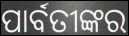
ପାର୍ବତୀଙ୍କର